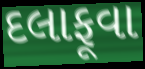
દલાફૂવા